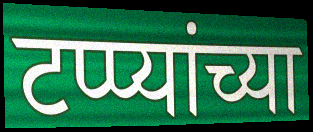
टप्प्यांच्या